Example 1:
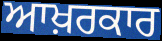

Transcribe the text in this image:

ਆਖ਼ਰਕਾਰ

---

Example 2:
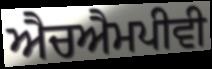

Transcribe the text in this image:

ਐਚਐਮਪੀਵੀ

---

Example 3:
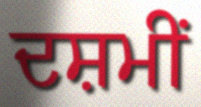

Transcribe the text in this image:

ਦਸ਼ਮੀਂ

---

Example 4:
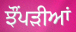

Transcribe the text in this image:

ਝੌਂਪੜੀਆਂ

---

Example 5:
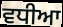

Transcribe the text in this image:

ਵਧੀਆ